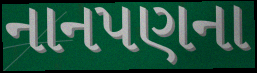
નાનપણના